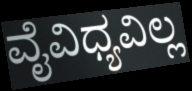
ವೈವಿಧ್ಯವಿಲ್ಲ